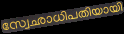
സ്വേഛാധിപതിയായി